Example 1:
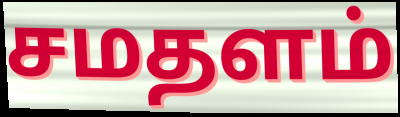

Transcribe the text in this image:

சமதளம்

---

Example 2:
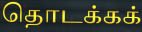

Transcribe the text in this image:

தொடக்கக்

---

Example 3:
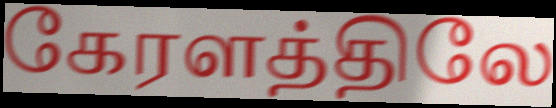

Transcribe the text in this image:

கேரளத்திலே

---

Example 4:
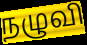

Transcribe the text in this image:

நழுவி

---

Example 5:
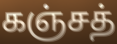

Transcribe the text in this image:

கஞ்சத்